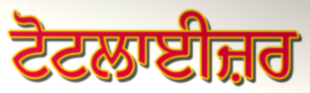
ਟੋਟਲਾਈਜ਼ਰ